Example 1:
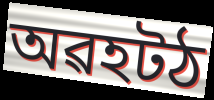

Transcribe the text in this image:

অৱহটঠ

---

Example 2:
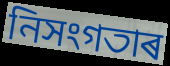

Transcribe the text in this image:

নিসংগতাৰ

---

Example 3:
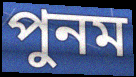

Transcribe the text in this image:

পুনম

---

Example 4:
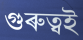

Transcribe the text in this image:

গুৰুত্বই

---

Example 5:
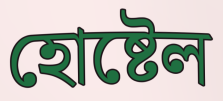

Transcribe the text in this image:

হোষ্টেল